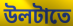
উলটাতে